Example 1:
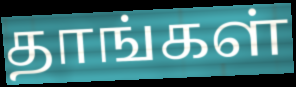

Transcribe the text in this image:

தாங்கள்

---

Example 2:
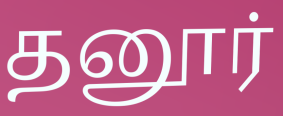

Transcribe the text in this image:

தனூர்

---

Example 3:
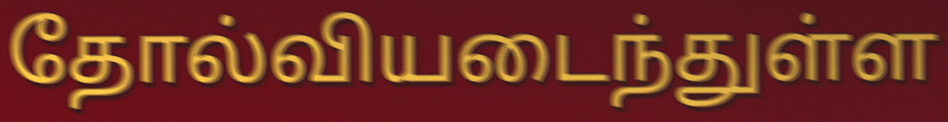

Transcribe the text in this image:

தோல்வியடைந்துள்ள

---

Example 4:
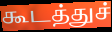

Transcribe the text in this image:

கூடத்துச்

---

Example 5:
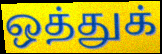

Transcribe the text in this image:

ஒத்துக்